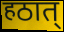
हठात्